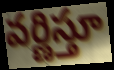
వర్ణిస్తూ